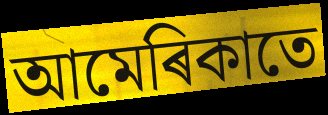
আমেৰিকাতে